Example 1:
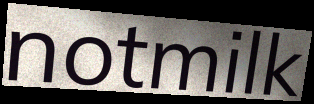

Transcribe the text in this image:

notmilk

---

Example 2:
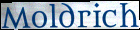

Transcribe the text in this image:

Moldrich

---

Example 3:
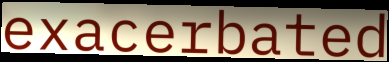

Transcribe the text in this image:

exacerbated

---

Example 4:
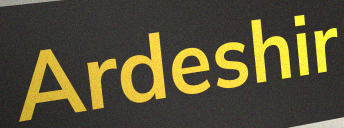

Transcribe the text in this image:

Ardeshir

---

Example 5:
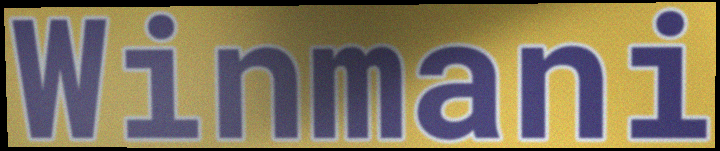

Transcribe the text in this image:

Winmani